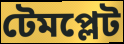
টেমপ্লেট